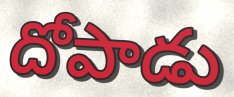
దోపాడు